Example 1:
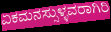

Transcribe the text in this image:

ಏಕಮನಸ್ಸುಳ್ಳವರಾಗಿರಿ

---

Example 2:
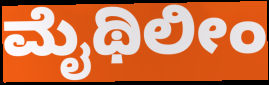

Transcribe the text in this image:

ಮೈಥಿಲೀಂ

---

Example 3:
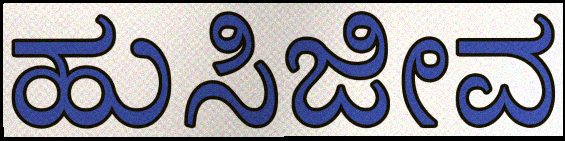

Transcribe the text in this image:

ಹುಸಿಜೀವ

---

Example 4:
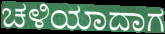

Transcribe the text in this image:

ಚಳಿಯಾದಾಗ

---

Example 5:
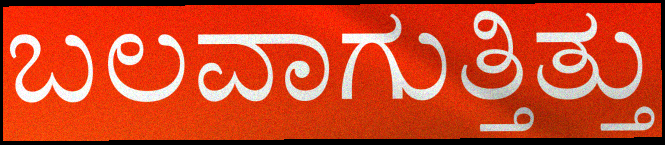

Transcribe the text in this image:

ಬಲವಾಗುತ್ತಿತ್ತು